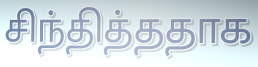
சிந்தித்ததாக